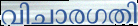
വിചാരഗതി